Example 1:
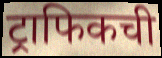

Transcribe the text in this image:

ट्राफिकची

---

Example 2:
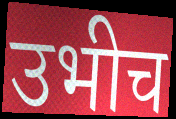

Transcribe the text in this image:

उभीच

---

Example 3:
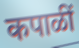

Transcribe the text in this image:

कपाळीं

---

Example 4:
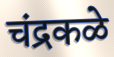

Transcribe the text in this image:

चंद्रकळे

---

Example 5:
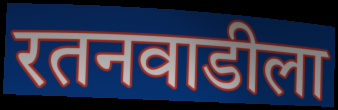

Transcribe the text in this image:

रतनवाडीला